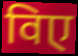
विए